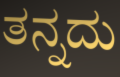
ತನ್ನದು